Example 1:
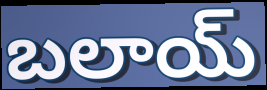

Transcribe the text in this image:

బలాయ్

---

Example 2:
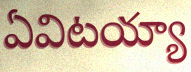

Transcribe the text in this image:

ఏవిటయ్యా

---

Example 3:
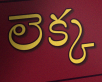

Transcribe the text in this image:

లెక్క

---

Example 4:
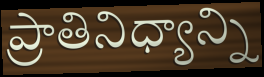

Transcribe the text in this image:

ప్రాతినిధ్యాన్ని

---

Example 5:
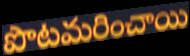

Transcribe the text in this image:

పొటమరించాయి